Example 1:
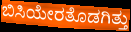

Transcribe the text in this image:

ಬಿಸಿಯೇರತೊಡಗಿತ್ತು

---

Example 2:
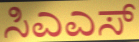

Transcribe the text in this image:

ಸಿಎಎಸ್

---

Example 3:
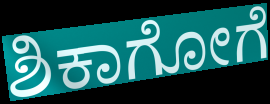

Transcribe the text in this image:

ಶಿಕಾಗೋಗೆ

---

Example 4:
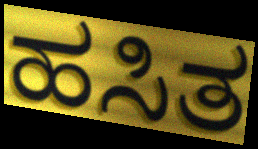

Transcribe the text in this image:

ಹಸಿತ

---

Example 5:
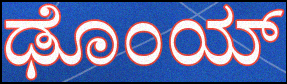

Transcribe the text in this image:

ಢೊಂಯ್